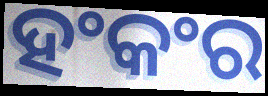
ହଂକଂର